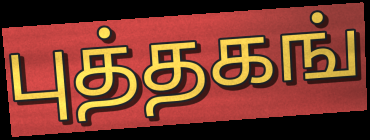
புத்தகங்